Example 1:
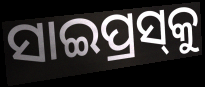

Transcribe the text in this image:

ସାଇପ୍ରସ୍‌କୁ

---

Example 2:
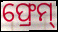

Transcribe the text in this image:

ଫ୍ରେମ୍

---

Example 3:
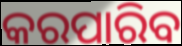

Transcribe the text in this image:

କରପାରିବ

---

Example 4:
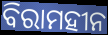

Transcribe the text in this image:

ବିରାମହୀନ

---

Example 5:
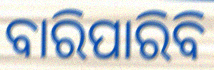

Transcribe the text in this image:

ବାରିପାରିବି